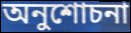
অনুশোচনা